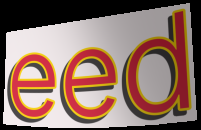
eed